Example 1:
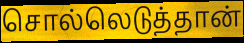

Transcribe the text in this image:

சொல்லெடுத்தான்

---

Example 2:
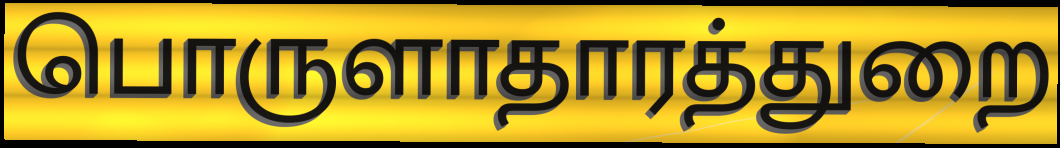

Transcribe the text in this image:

பொருளாதாரத்துறை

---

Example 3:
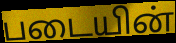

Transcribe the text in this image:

படையின்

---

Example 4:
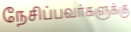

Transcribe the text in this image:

நேசிப்பவர்களுக்கு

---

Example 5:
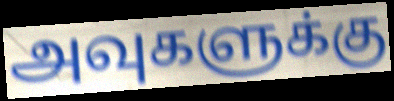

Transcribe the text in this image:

அவுகளுக்கு